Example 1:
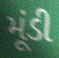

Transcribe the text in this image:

મૂંડી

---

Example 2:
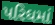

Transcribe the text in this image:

પરિઘમાં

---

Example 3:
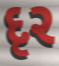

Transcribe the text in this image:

દૃર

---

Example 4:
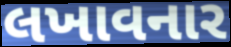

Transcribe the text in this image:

લખાવનાર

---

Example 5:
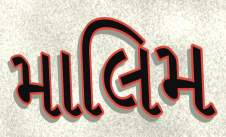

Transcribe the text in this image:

માલિમ